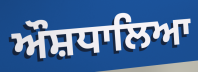
ਔਸ਼ਧਾਲਿਆ